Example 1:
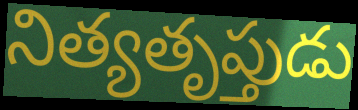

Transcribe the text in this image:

నిత్యతృప్తుడు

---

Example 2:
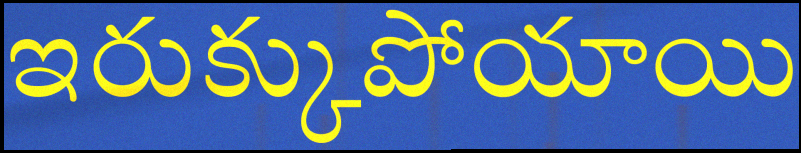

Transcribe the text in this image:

ఇరుక్కుపోయాయి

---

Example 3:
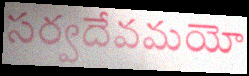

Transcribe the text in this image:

సర్వదేవమయో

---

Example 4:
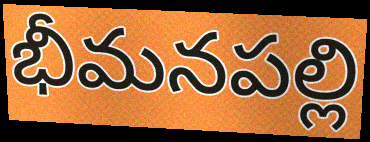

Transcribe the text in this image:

భీమనపల్లి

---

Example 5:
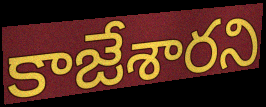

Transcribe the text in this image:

కాజేశారని